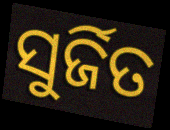
ସୁର୍ଜିତ